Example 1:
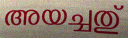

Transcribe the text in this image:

അയച്ചതു്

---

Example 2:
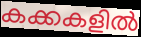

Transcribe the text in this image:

കക്കകളിൽ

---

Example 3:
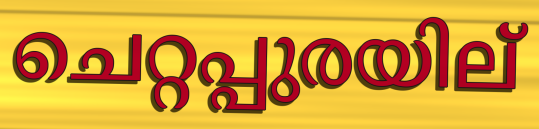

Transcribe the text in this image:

ചെറ്റപ്പുരയില്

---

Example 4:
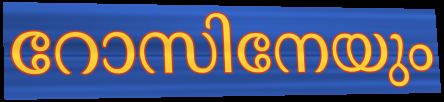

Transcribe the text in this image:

റോസിനേയും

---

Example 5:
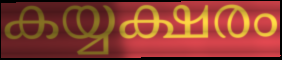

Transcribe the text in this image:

കയ്യക്ഷരം